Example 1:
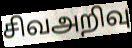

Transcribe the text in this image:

சிவஅறிவு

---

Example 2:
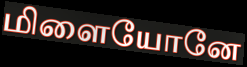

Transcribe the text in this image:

மிளையோனே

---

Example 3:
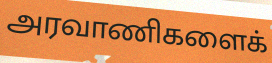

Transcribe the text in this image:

அரவாணிகளைக்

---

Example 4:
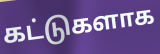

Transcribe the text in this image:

கட்டுகளாக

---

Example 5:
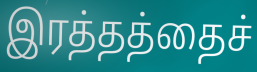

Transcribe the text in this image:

இரத்தத்தைச்